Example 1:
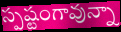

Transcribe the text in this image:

స్పష్టంగావున్నా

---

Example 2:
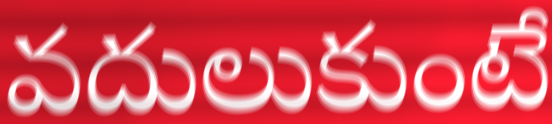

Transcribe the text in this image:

వదులుకుంటే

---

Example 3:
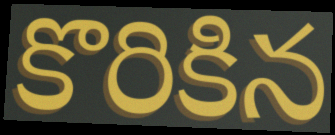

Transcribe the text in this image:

కొరికిన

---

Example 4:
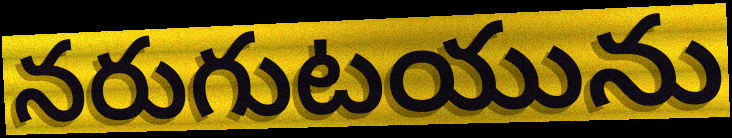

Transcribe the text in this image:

నరుగుటయును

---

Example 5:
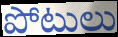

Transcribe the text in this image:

పోటులు